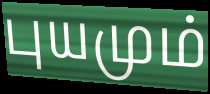
புயமும்